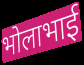
भोलाभाई